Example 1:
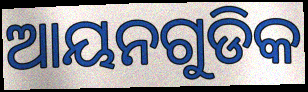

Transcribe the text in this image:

ଆୟନଗୁଡିକ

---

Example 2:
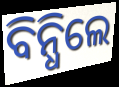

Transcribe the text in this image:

ବିନ୍ଧିଲେ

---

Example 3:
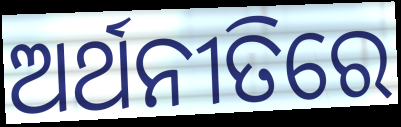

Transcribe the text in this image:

ଅର୍ଥନୀତିରେ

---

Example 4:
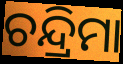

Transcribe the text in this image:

ଚନ୍ଦ୍ରିମା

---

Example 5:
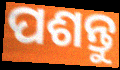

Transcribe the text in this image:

ପଶନ୍ତୁ